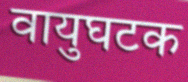
वायुघटक